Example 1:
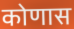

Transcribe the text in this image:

कोणास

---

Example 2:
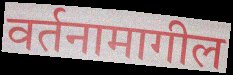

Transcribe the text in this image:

वर्तनामागील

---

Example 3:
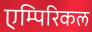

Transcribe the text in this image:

एम्पिरिकल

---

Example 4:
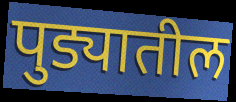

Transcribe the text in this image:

पुड्यातील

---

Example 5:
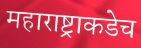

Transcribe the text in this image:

महाराष्ट्राकडेच